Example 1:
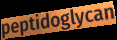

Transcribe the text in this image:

peptidoglycan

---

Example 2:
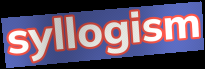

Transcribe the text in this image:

syllogism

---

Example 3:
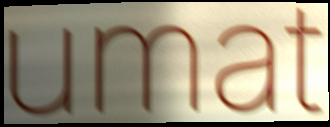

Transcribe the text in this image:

umat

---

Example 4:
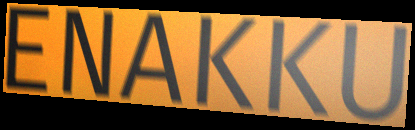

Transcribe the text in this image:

ENAKKU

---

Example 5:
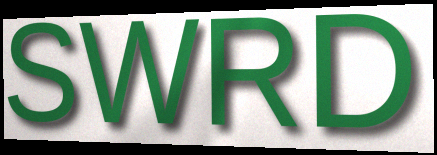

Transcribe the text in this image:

SWRD